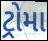
ટ્રોમા